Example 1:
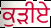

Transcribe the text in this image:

ਕੁੜੀਏ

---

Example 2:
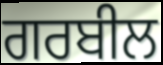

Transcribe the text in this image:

ਗਰਬੀਲ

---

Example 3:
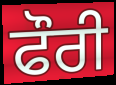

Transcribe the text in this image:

ਫੌਰੀ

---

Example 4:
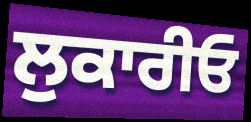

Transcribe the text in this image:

ਲੁਕਾਰੀਓ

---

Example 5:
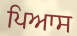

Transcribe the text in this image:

ਪਿਆਸ